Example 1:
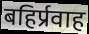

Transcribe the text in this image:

बहिर्प्रवाह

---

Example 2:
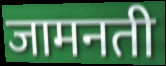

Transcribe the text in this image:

जामनती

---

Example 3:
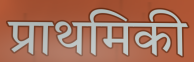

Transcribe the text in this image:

प्राथमिकी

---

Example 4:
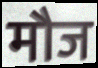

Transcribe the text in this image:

मौज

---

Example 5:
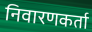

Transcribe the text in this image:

निवारणकर्ता